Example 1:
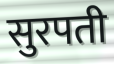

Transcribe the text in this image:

सुरपती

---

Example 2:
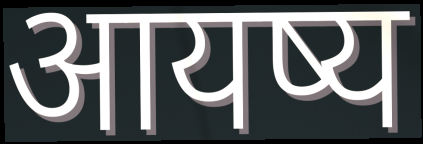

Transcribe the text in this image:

आयष्य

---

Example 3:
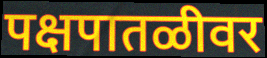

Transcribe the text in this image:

पक्षपातळीवर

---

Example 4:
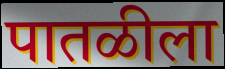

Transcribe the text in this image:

पातळीला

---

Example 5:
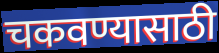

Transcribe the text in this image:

चकवण्यासाठी